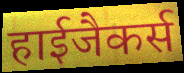
हाईजैकर्स